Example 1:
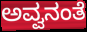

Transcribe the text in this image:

ಅವ್ವನಂತೆ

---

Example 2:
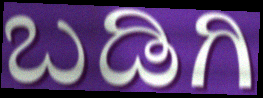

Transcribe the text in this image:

ಬಡಿಗಿ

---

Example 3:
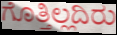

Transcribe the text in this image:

ಗೊತ್ತಿಲ್ಲದಿರು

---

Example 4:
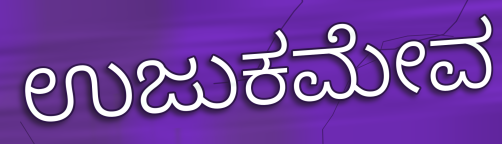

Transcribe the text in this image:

ಉಜುಕಮೇವ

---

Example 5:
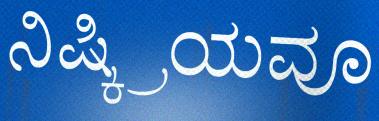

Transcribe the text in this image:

ನಿಷ್ಕ್ರಿಯವೂ